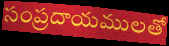
సంప్రదాయములతో